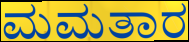
ಮಮತಾರ